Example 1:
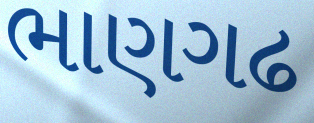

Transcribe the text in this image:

ભાણગઢ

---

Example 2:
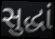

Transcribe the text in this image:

સુદ્ધાં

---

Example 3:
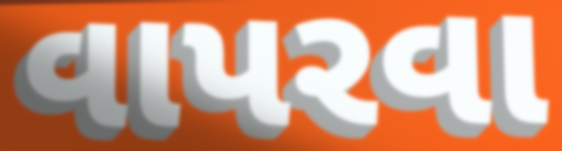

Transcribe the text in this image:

વાપરવા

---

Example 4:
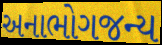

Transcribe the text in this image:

અનાભોગજન્ય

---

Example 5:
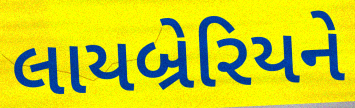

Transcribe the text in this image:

લાયબ્રેરિયને